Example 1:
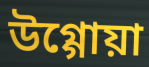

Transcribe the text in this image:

উগ্গোয়া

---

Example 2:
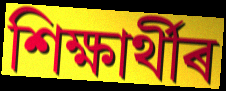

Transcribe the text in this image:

শিক্ষাৰ্থীৰ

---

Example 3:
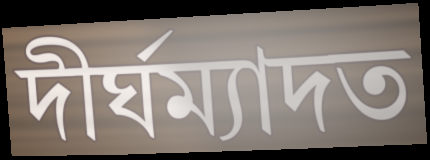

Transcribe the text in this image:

দীৰ্ঘম্যাদত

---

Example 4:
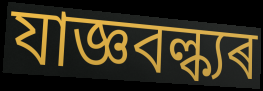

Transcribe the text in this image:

যাজ্ঞবল্ক্যৰ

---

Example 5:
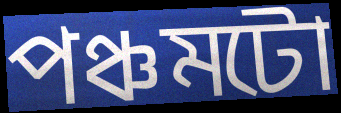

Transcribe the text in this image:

পঞ্চমটো